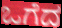
ಒಗೆದ